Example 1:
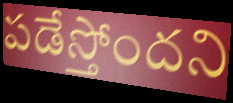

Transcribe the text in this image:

పడేస్తోందని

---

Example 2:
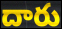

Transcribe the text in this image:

దారు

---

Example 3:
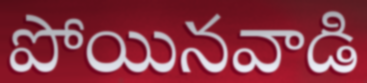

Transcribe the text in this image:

పోయినవాడి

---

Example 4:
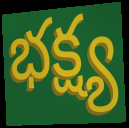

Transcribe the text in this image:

భక్ష్య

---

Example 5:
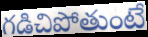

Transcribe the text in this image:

గడిచిపోతుంటే